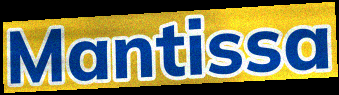
Mantissa